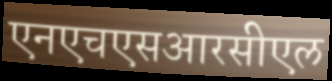
एनएचएसआरसीएल